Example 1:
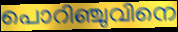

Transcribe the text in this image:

പൊറിഞ്ചുവിനെ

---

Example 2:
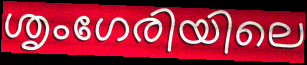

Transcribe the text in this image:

ശൃംഗേരിയിലെ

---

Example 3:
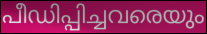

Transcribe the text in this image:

പീഡിപ്പിച്ചവരെയും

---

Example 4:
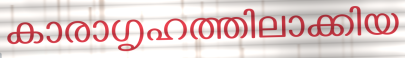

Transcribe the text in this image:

കാരാഗൃഹത്തിലാക്കിയ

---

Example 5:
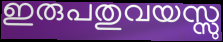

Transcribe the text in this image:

ഇരുപതുവയസ്സു